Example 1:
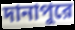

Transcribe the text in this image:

দানাপুরে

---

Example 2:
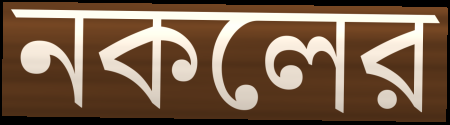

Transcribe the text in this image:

নকলের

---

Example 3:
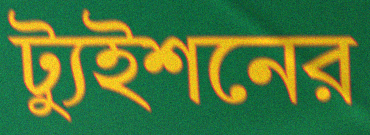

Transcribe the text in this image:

ট্যুইশনের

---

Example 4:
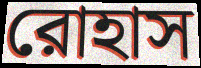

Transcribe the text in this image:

রোহাস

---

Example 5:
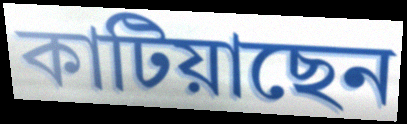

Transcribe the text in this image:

কাটিয়াছেন